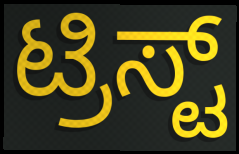
ಟ್ರಿಸ್ಟ್